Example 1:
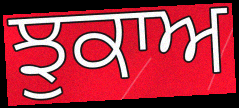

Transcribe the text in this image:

ਝੁਕਾਅ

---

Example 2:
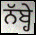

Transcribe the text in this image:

ਨੱਬ੍ਹੇ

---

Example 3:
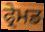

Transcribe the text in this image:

ਫ੍ਰੇਮਡ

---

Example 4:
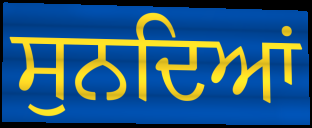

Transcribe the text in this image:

ਸੁਨਦਿਆਂ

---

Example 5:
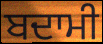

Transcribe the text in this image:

ਬਦਾਮੀ